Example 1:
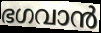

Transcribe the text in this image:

ഭഗവാൻ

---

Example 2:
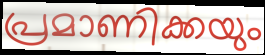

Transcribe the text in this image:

പ്രമാണിക്കയും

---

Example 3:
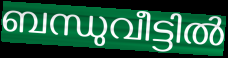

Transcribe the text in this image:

ബന്ധുവീട്ടിൽ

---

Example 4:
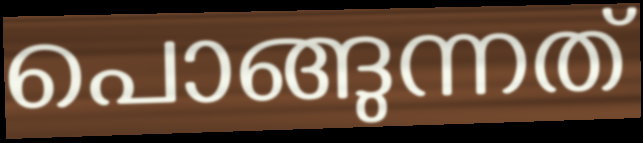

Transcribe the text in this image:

പൊങ്ങുന്നത്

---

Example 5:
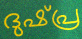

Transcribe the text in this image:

ദുഷ്‌പ്ര